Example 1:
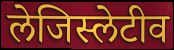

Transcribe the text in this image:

लेजिस्लेटीव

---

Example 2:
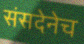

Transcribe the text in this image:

संसदेनेच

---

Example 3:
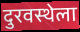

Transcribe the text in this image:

दुरवस्थेला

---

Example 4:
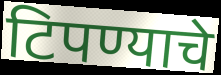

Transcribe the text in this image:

टिपण्याचे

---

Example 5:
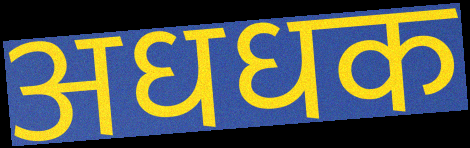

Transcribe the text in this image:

अधधक